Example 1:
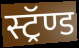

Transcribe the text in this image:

स्ट्रॅण्ड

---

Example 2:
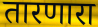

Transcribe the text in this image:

तारणारा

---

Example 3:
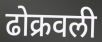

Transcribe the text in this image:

ढोक्रवली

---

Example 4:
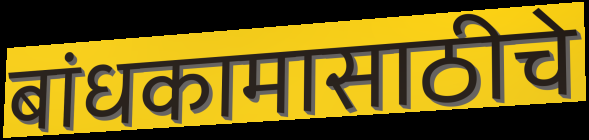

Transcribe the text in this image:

बांधकामासाठीचे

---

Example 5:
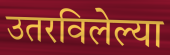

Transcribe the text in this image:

उतरविलेल्या